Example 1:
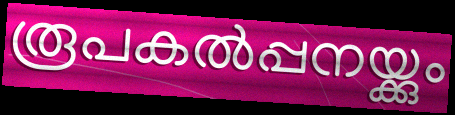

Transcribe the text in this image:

രൂപകൽപ്പനയ്ക്കും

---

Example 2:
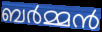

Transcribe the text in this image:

ബർമ്മൻ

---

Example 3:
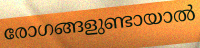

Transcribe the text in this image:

രോഗങ്ങളുണ്ടായാൽ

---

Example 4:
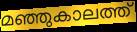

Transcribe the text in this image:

മഞ്ഞുകാലത്ത്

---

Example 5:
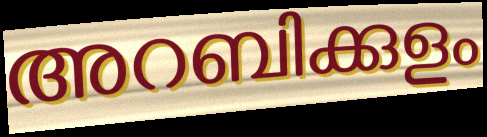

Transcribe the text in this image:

അറബിക്കുളം